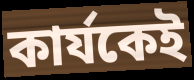
কার্যকেই